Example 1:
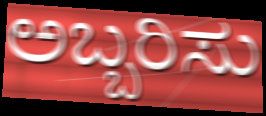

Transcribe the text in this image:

ಅಬ್ಬರಿಸು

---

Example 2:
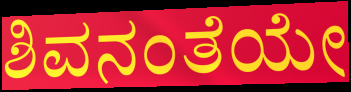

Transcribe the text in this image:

ಶಿವನಂತೆಯೇ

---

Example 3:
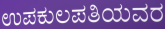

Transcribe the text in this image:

ಉಪಕುಲಪತಿಯವರ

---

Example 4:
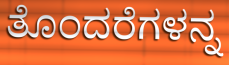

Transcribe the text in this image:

ತೊಂದರೆಗಳನ್ನ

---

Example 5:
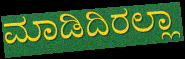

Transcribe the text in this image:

ಮಾಡಿದಿರಲ್ಲಾ